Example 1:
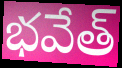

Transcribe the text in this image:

భవేత్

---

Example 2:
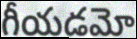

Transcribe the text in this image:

గీయడమో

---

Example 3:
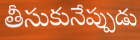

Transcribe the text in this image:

తీసుకునేప్పుడు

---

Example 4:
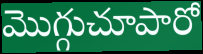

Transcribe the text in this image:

మొగ్గుచూపారో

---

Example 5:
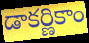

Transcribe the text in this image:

డాకర్ణికాం